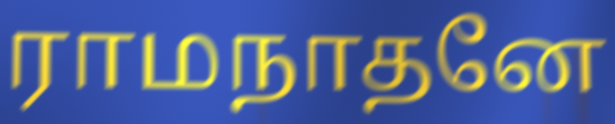
ராமநாதனே